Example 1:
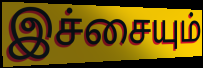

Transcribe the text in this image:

இச்சையும்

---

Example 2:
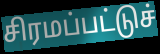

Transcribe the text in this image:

சிரமப்பட்டுச்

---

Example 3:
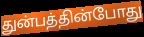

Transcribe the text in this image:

துன்பத்தின்போது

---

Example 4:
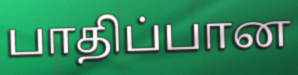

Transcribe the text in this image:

பாதிப்பான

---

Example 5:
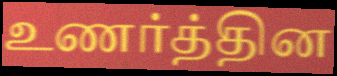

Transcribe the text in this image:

உணர்த்தின